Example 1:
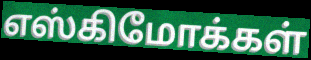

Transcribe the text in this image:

எஸ்கிமோக்கள்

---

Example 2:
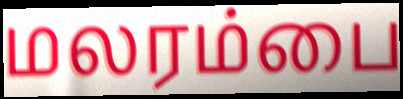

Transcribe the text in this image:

மலரம்பை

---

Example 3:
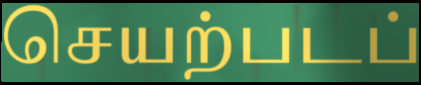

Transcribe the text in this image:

செயற்படப்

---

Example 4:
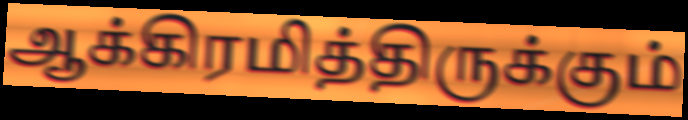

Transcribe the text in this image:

ஆக்கிரமித்திருக்கும்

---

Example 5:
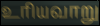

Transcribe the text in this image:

உரியவாறு